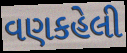
વણકહેલી